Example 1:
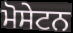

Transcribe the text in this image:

ਮੋਸੇਟਨ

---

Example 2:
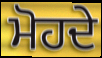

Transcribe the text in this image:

ਮੋਹਦੇ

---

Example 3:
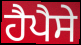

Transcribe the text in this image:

ਹੈਪੈਸੇ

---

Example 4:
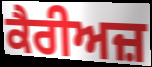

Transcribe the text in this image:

ਕੈਰੀਅਜ਼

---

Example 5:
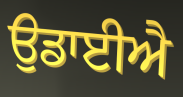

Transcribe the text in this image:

ਉਡਾਈਐ